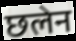
छलेन